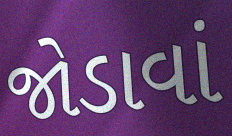
જોડાવાં